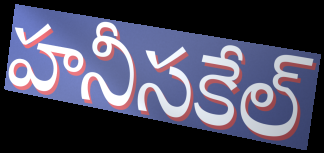
హనీసకేల్